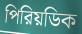
পিরিয়ডিক